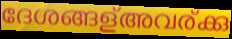
ദേശങ്ങള്അവര്ക്കു